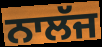
ਨਾਲੱਜ